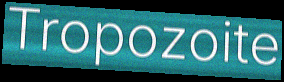
Tropozoite